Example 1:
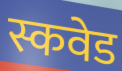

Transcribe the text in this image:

स्कवेड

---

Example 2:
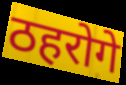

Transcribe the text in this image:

ठहरोगे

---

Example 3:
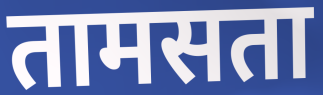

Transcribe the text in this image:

तामसता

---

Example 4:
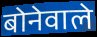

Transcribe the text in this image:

बोनेवाले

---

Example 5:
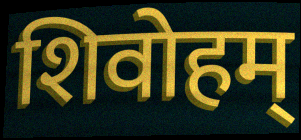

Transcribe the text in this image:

शिवोहम्